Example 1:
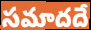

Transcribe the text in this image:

సమాదదే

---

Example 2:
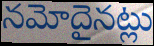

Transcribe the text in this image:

నమోదైనట్లు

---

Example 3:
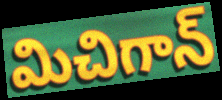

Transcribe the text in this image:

మిచిగాన్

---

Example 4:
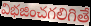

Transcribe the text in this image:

విభజించగలిగితే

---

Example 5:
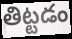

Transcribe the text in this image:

తిట్టడం